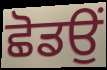
ਛੋਡਉਂ